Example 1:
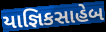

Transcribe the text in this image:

યાજ્ઞિકસાહેબ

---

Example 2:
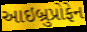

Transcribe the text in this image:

આઇબ્રુપ્રોફેન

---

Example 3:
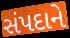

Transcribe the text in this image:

સંપદાને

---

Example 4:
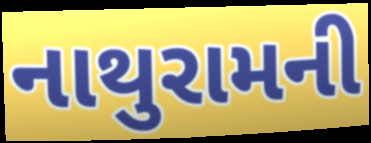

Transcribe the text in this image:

નાથુરામની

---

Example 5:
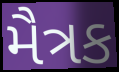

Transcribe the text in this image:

મૈત્રક